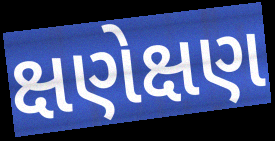
ક્ષણેક્ષણ